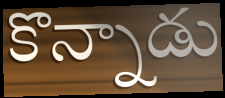
కొన్నాడు